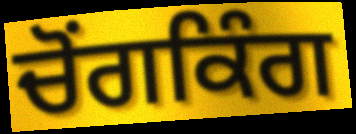
ਚੋਂਗਕਿੰਗ